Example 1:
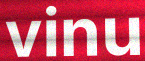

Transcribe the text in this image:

vinu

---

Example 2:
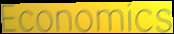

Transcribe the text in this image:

Economics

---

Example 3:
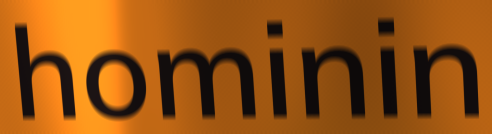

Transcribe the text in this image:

hominin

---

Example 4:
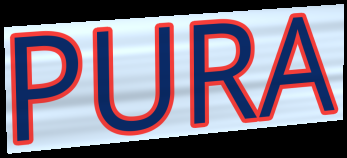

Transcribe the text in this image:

PURA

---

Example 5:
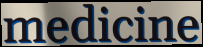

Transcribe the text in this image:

medicine